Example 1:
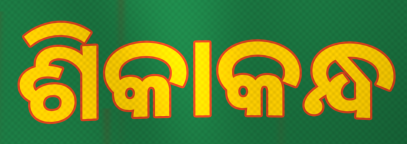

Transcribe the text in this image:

ଶିକାକନ୍ଧ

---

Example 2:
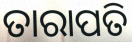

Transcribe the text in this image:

ତାରାପତି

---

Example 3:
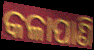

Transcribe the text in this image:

କଳାପାଣି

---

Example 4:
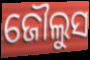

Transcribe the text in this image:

ଜୌଲୁସ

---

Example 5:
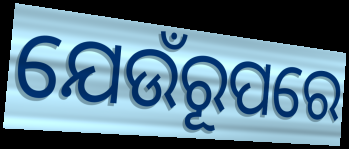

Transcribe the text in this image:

ଯେଉଁରୂପରେ